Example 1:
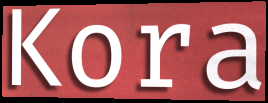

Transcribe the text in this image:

Kora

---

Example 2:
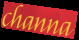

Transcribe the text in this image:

channa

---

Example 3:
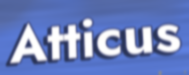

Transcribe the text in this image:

Atticus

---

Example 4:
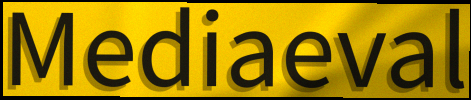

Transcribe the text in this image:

Mediaeval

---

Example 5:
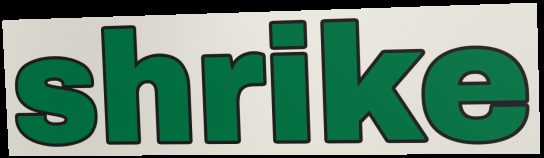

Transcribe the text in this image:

shrike